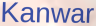
Kanwar